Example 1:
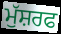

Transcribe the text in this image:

ਮੁੱਸ਼ਰਫ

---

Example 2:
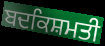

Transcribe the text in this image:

ਬਦਕਿਸ਼ਮਤੀ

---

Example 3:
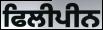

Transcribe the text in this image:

ਫਿਲੀਪੀਨ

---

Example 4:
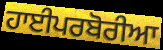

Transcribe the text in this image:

ਹਾਈਪਰਬੋਰੀਆ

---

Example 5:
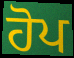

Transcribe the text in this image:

ਹੋਪ